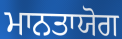
ਮਾਨਤਾਯੋਗ